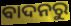
ବାଦନରୁ